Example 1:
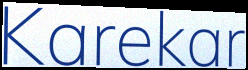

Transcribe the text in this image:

Karekar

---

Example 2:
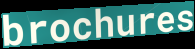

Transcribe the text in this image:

brochures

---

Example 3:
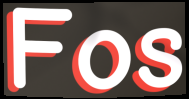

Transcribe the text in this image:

Fos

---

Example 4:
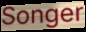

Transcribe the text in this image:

Songer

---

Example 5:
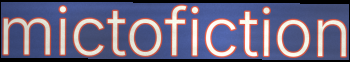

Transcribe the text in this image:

mictofiction